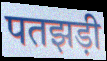
पतझड़ी